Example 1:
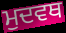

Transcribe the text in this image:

ਮੁਦਵਥ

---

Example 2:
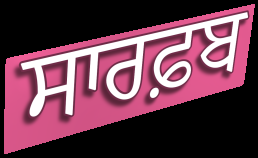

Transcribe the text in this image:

ਸਾਰਫ਼ਬ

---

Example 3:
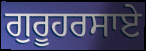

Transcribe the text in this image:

ਗੁਰੂਹਰਸਾਏ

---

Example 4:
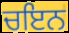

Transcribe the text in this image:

ਚਇਨ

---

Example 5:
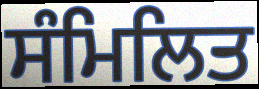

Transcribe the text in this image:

ਸੰਮਿਲਿਤ